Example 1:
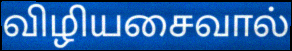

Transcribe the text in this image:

விழியசைவால்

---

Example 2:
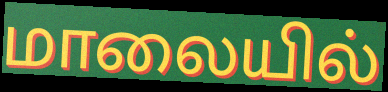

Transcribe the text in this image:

மாலையில்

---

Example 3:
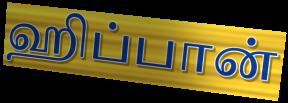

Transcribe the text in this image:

ஹிப்பான்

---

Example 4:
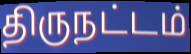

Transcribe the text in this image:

திருநட்டம்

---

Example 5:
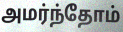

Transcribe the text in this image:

அமர்ந்தோம்